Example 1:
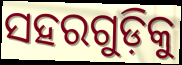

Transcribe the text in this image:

ସହରଗୁଡ଼ିକୁ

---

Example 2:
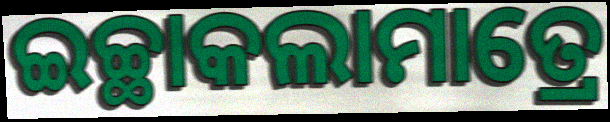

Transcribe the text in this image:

ଇଚ୍ଛାକଲାମାତ୍ରେ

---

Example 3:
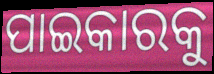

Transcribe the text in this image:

ପାଇକାରକୁ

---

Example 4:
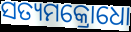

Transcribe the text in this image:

ସତ୍ୟମକ୍ରୋଧୋ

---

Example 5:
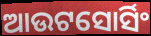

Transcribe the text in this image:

ଆଉଟସୋର୍ସିଂ